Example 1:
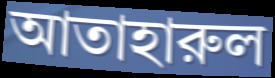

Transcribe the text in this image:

আতাহারুল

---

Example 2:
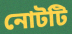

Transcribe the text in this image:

নোটটি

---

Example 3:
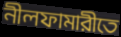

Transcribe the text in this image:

নীলফামারীতে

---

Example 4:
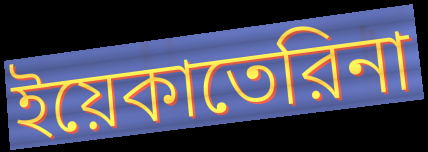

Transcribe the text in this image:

ইয়েকাতেরিনা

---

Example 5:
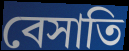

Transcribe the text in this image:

বেসাতি